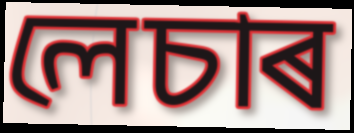
লেচাৰ